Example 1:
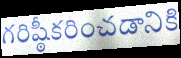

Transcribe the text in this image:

గరిష్ఠీకరించడానికి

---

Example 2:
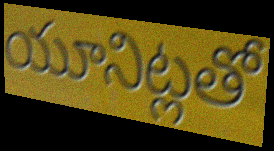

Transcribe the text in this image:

యూనిట్లతో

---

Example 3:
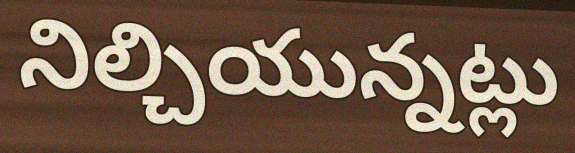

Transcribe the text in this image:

నిల్చియున్నట్లు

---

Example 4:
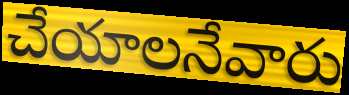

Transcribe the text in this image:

చేయాలనేవారు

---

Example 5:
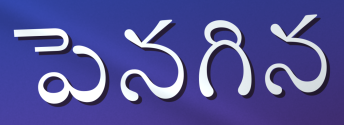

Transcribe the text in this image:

పెనగిన